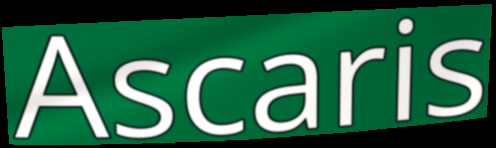
Ascaris